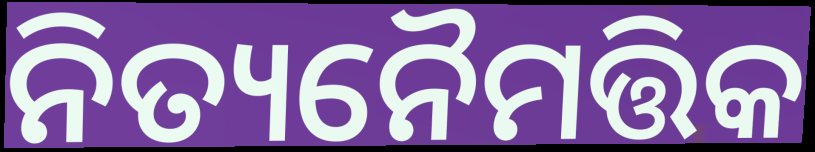
ନିତ୍ୟନୈମତ୍ତିକ